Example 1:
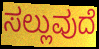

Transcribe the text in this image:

ಸಲ್ಲುವುದೆ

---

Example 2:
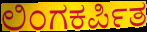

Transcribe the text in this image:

ಲಿಂಗಕರ್ಪಿತ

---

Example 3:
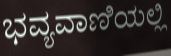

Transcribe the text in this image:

ಭವ್ಯವಾಣಿಯಲ್ಲಿ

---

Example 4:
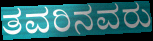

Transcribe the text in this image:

ತವರಿನವರು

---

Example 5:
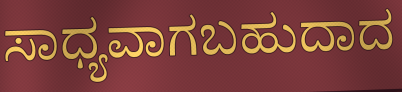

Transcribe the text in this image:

ಸಾಧ್ಯವಾಗಬಹುದಾದ